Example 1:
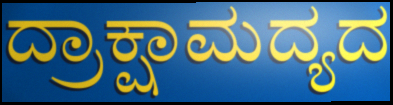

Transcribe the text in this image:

ದ್ರಾಕ್ಷಾಮದ್ಯದ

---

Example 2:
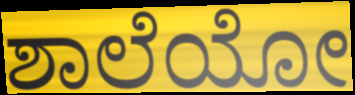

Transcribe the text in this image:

ಶಾಲೆಯೋ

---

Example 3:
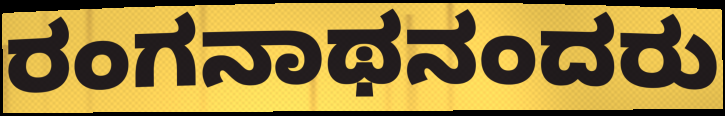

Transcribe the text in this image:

ರಂಗನಾಥನಂದರು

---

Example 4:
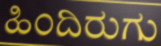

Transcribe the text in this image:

ಹಿಂದಿರುಗು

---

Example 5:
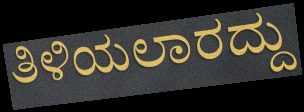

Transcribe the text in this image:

ತಿಳಿಯಲಾರದ್ದು